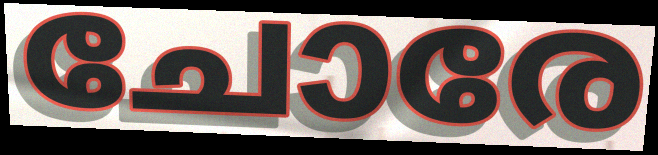
ചോരേ